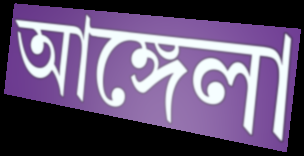
আঙ্গেলা